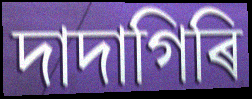
দাদাগিৰি